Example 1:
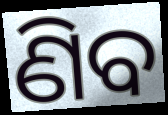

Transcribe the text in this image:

ଣିବ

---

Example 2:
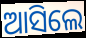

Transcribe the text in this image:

ଆସିଲେ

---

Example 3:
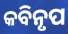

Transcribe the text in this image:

କବିନୃପ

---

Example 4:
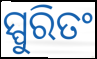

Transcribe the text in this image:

ସ୍ପୁରିତଂ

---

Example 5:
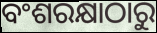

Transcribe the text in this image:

ବଂଶରକ୍ଷାଠାରୁ